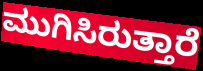
ಮುಗಿಸಿರುತ್ತಾರೆ